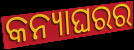
କନ୍ୟାଘରର